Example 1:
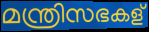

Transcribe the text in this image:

മന്ത്രിസഭകള്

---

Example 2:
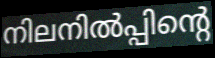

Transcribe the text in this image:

നിലനിൽപ്പിന്റെ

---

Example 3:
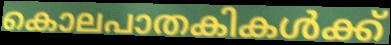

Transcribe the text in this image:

കൊലപാതകികൾക്ക്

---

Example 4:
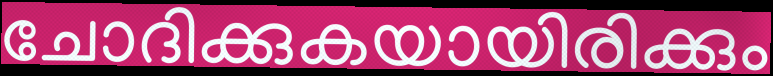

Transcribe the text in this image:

ചോദിക്കുകയായിരിക്കും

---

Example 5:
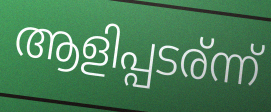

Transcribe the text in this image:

ആളിപ്പടര്ന്ന്